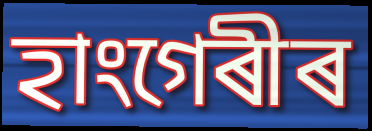
হাংগেৰীৰ